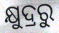
କ୍ଷୁଦ୍ରରୁ